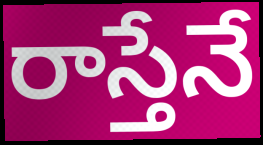
రాస్తేనే